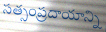
సత్సంప్రదాయాన్ని